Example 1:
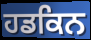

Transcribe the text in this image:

ਹਡਕਿਨ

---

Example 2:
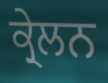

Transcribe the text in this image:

ਕ੍ਰੇਲਨ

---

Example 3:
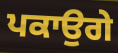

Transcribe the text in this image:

ਪਕਾਉਗੇ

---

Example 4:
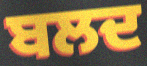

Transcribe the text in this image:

ਬਲਦ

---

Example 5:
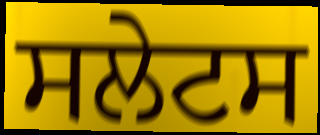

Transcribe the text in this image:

ਸਲੇਟਸ